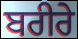
ਬਰੀਰੇ